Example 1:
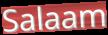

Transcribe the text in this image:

Salaam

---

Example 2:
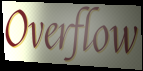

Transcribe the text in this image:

Overflow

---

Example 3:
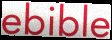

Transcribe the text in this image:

ebible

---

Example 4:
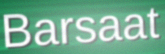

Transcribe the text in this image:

Barsaat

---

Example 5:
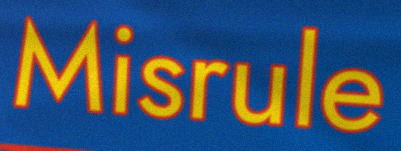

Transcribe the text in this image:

Misrule